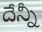
దేన్నీ